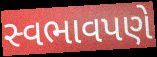
સ્વભાવપણે